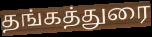
தங்கத்துரை